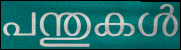
പന്തുകൾ